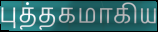
புத்தகமாகிய